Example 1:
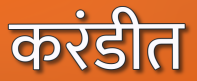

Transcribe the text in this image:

करंडीत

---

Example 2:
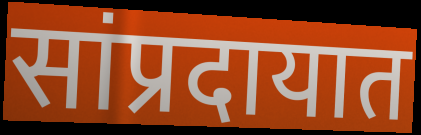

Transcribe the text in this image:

सांप्रदायात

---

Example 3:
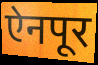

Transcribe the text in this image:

ऐनपूर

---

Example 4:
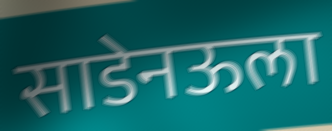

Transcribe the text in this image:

साडेनऊला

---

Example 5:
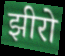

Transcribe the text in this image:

झीरो